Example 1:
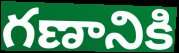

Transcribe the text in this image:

గణానికి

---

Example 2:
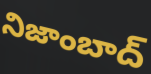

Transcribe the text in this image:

నిజాంబాద్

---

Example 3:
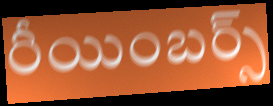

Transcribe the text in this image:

రీయింబర్స్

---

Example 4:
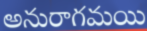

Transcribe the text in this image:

అనురాగమయి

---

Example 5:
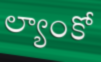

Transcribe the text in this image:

ల్యాంకో